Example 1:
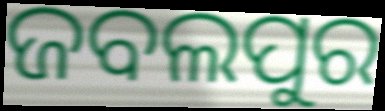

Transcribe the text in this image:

ଜବଲପୁର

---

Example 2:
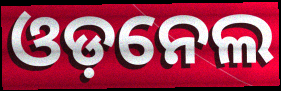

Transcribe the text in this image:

ଓଡ଼ନେଲ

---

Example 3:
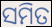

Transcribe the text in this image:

ସମିତ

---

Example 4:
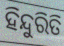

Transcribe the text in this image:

ହିନ୍ଦୁରିତି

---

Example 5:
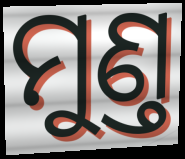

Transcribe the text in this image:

ମୁଣ୍ତ